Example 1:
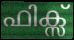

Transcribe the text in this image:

ഫിക്സ്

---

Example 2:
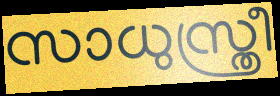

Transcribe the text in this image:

സാധുസ്ത്രീ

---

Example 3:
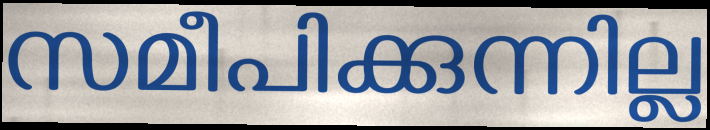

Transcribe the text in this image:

സമീപിക്കുന്നില്ല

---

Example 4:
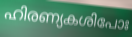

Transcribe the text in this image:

ഹിരണ്യകശിപോഃ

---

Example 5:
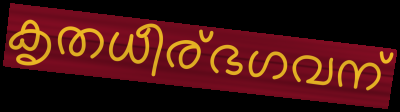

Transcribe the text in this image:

കൃതധീര്ഭഗവന്